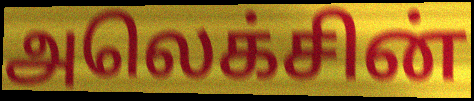
அலெக்சின்